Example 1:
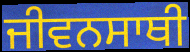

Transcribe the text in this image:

ਜੀਵਨਸਾਥੀ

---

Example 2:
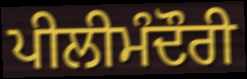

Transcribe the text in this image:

ਪੀਲੀਮੰਦੌਰੀ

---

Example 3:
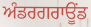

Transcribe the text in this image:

ਅੰਡਰਗਰਾਊੰਡ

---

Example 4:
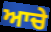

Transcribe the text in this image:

ਆਚੇ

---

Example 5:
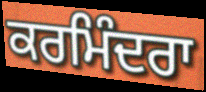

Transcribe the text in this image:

ਕਰਮਿੰਦਰਾ